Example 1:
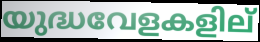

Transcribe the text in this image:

യുദ്ധവേളകളില്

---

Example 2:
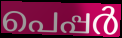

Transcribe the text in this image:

പെപ്പർ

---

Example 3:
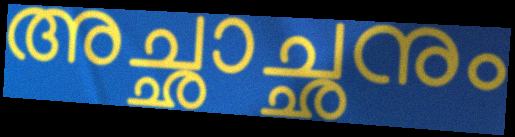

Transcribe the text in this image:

അച്ഛാച്ഛനും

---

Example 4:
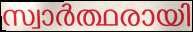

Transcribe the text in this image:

സ്വാർത്ഥരായി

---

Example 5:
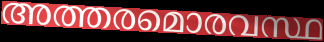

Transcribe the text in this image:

അത്തരമൊരവസ്ഥ